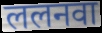
ललनवा